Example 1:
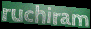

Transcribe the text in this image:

ruchiram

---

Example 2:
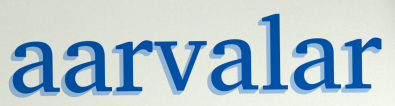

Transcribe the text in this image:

aarvalar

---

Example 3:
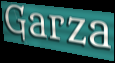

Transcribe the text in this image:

Garza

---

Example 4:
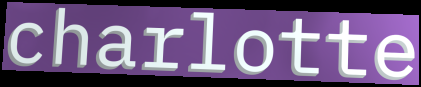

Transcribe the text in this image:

charlotte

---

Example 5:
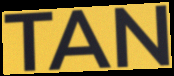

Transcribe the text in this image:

TAN